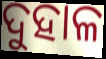
ଦୁହାଳ